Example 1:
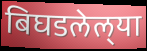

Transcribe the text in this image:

बिघडलेल्या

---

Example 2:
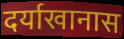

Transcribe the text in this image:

दर्याखानास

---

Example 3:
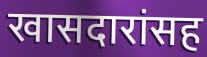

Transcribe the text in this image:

खासदारांसह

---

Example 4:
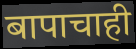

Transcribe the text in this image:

बापाचाही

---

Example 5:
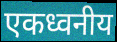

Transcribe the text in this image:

एकध्वनीय